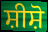
ਸ਼ੀਸ਼ੋ